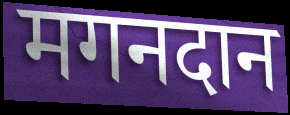
मगनदान